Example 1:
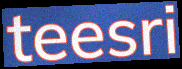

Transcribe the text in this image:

teesri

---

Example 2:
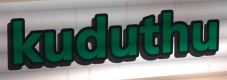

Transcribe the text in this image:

kuduthu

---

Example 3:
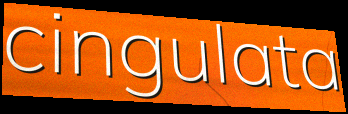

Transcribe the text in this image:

cingulata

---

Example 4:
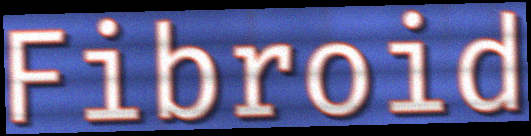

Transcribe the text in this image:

Fibroid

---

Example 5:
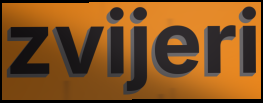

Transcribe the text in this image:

zvijeri